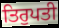
ਤਿਰੁਪਤੀ